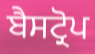
ਬੈਸਟ੍ਰੋਪ